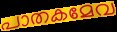
പാതകമേവ